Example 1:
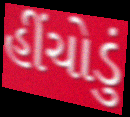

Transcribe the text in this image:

હીંચોડું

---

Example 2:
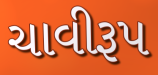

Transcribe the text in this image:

ચાવીરૂપ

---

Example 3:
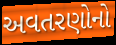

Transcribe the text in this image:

અવતરણોનો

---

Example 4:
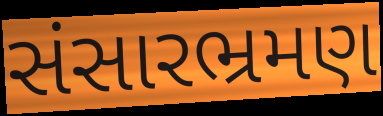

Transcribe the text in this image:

સંસારભ્રમણ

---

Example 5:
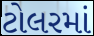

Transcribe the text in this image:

ટોલરમાં